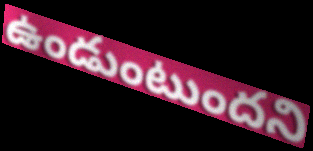
ఉండుంటుందని